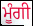
ਮੂੰਗੀ